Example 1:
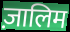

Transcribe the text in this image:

ज़ालिम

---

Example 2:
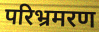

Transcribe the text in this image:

परिभ्रमरण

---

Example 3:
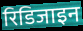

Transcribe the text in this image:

रिडिजाइन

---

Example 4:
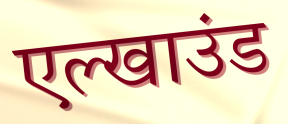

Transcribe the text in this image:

एल्खाउंड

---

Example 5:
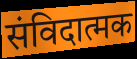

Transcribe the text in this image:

संविदात्मक